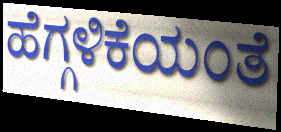
ಹೆಗ್ಗಳಿಕೆಯಂತೆ